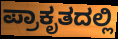
ಪ್ರಾಕೃತದಲ್ಲಿ